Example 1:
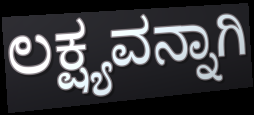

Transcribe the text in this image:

ಲಕ್ಷ್ಯವನ್ನಾಗಿ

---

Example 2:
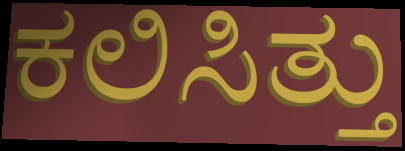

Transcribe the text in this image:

ಕಲಿಸಿತ್ತು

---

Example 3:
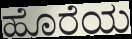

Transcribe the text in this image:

ಹೊರೆಯ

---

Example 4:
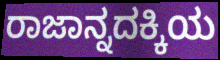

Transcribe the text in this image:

ರಾಜಾನ್ನದಕ್ಕಿಯ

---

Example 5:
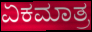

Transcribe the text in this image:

ಏಕಮಾತ್ರ